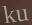
ku